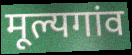
मूल्यगांव